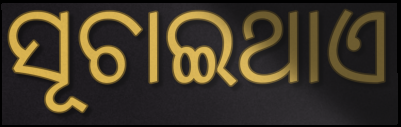
ସୂଚାଇଥାଏ